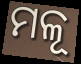
ମଳୂ